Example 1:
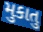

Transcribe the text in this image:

મુકાતુ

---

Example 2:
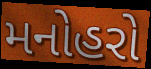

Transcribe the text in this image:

મનોહરો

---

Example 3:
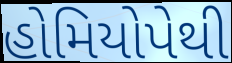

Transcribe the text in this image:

હોમિયોપેથી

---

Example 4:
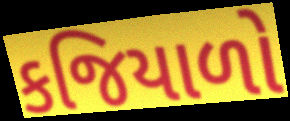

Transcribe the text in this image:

કજિયાળો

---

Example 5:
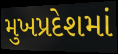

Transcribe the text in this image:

મુખપ્રદેશમાં